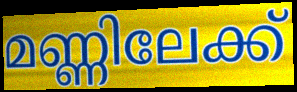
മണ്ണിലേക്ക്